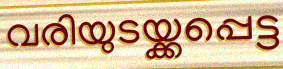
വരിയുടയ്ക്കപ്പെട്ട